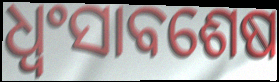
ଧ୍ଵଂସାବଶେଷ